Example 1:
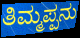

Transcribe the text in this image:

ತಿಮ್ಮಪ್ಪನು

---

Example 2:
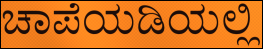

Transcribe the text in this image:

ಚಾಪೆಯಡಿಯಲ್ಲಿ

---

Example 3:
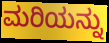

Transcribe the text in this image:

ಮರಿಯನ್ನು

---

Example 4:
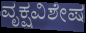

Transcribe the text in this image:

ವೃಕ್ಷವಿಶೇಷ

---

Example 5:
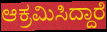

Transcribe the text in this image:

ಆಕ್ರಮಿಸಿದ್ದಾರೆ